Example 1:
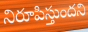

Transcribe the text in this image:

నిరూపిస్తుందని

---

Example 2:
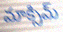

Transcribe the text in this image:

మాక్సిమ్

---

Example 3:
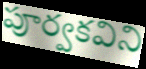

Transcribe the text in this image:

పూర్వకవిని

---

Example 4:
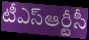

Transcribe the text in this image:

టీఎస్ఆర్టీసీ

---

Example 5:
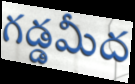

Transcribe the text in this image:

గడ్డమీద